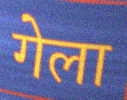
गेला